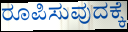
ರೂಪಿಸುವುದಕ್ಕೆ